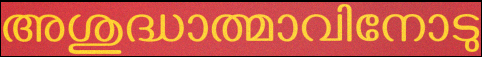
അശുദ്ധാത്മാവിനോടു